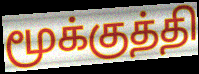
மூக்குத்தி